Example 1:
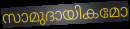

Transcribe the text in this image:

സാമുദായികമോ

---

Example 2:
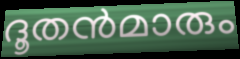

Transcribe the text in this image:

ദൂതൻമാരും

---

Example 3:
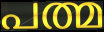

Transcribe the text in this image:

പത്മ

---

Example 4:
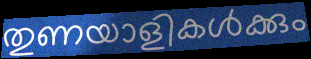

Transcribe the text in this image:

തുണയാളികൾക്കും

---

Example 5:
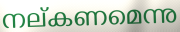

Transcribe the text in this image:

നല്‌കണമെന്നു